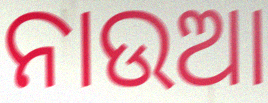
ନାଉଆ